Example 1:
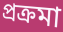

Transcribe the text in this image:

প্রক্রমা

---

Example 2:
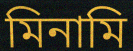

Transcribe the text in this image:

মিনামি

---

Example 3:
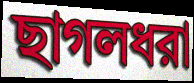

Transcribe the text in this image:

ছাগলধরা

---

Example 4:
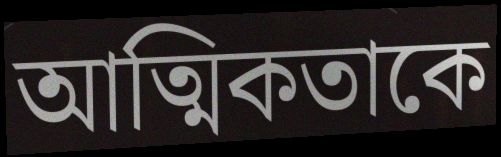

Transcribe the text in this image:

আত্মিকতাকে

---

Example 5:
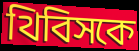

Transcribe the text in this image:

থিবিসকে